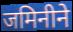
जमिनीने